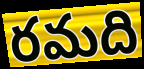
రమది